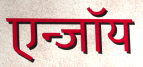
एन्जॉय